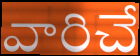
వారిచే